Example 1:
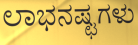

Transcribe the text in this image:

ಲಾಭನಷ್ಟಗಳು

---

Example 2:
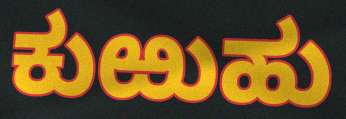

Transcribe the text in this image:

ಕುಱುಹು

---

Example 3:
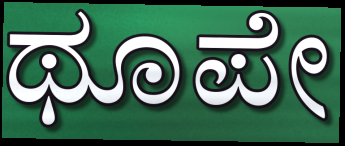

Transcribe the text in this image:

ಥೂಪೇ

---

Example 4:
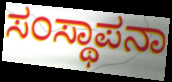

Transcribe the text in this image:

ಸಂಸ್ಥಾಪನಾ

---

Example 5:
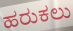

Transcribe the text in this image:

ಹರುಕಲು